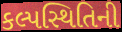
કલ્પસ્થિતિની